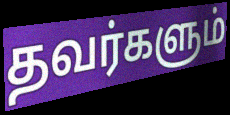
தவர்களும்